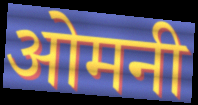
ओमनी